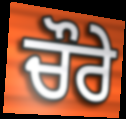
ਚੌਰੇ